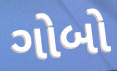
ગોબો